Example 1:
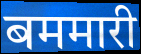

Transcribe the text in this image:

बममारी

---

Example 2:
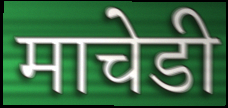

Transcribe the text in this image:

माचेडी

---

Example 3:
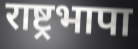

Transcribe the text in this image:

राष्ट्रभापा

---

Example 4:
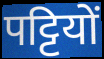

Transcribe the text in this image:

पट्टियों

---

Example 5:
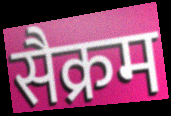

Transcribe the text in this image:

सैक्रम